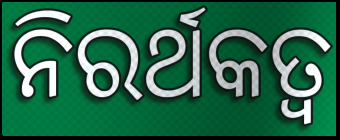
ନିରର୍ଥକତ୍ୱ